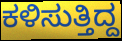
ಕಳಿಸುತ್ತಿದ್ದ